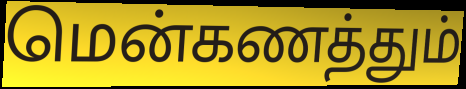
மென்கணத்தும்